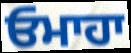
ਓਮਾਹਾ